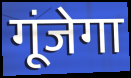
गूंजेगा